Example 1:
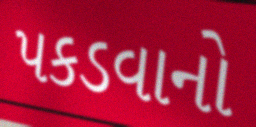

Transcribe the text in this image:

પકડવાનો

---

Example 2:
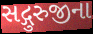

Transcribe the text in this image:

સદ્ગુરુજીના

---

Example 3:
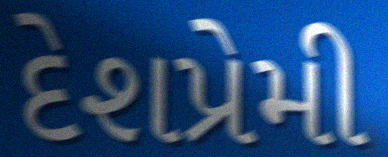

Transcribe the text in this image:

દેશપ્રેમી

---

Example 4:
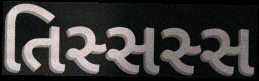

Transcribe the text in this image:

તિસ્સસ્સ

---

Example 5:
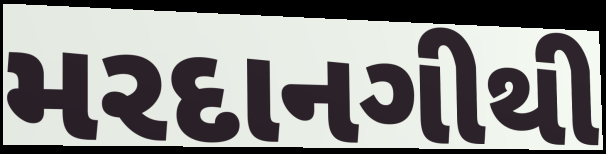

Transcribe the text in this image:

મરદાનગીથી